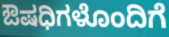
ಔಷಧಿಗಳೊಂದಿಗೆ